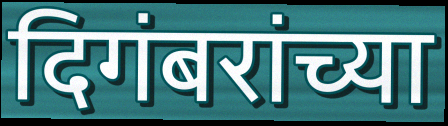
दिगंबरांच्या